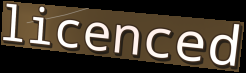
licenced